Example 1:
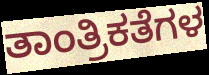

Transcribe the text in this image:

ತಾಂತ್ರಿಕತೆಗಳ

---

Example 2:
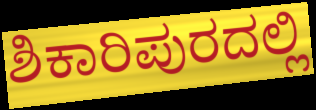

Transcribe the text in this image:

ಶಿಕಾರಿಪುರದಲ್ಲಿ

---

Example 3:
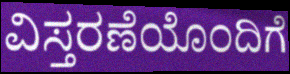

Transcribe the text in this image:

ವಿಸ್ತರಣೆಯೊಂದಿಗೆ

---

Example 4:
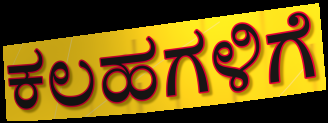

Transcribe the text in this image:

ಕಲಹಗಳಿಗೆ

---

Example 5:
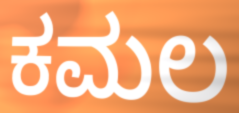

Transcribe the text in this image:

ಕಮಲ